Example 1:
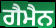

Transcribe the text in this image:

ਗੈਮੈਨ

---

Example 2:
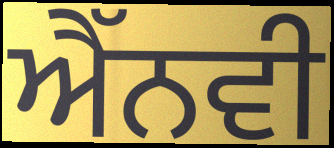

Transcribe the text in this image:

ਐੱਨਵੀ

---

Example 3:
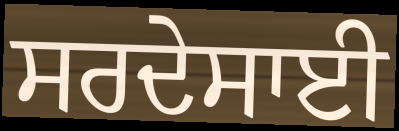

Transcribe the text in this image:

ਸਰਦੇਸਾਈ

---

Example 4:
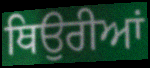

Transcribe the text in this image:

ਥਿਉਰੀਆਂ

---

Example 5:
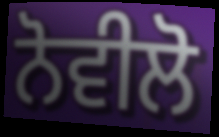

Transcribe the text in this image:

ਨੋਵੀਲੋ